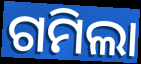
ଗମିଲା